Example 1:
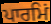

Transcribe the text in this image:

ਪਾਰਮਿਂ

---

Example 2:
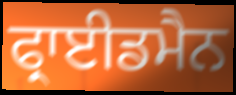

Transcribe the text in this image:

ਫ੍ਰਾਈਡਮੈਨ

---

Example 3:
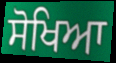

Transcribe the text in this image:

ਸੋਖਿਆ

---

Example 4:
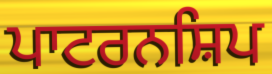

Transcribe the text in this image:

ਪਾਟਰਨਸ਼ਿਪ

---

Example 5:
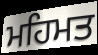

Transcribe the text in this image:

ਮਹਿਮਤ